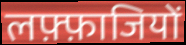
लफ़्फ़ाजियों